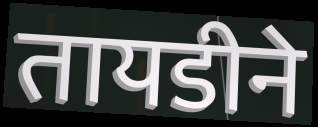
तायडीने